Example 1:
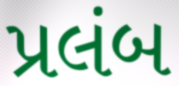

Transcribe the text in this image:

પ્રલંબ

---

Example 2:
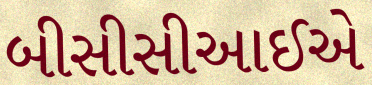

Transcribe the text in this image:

બીસીસીઆઈએ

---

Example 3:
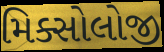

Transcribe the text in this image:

મિક્સોલોજી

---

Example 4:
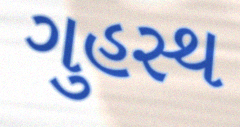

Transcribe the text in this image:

ગુહસ્થ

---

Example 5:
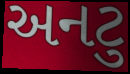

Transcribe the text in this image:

અનટુ